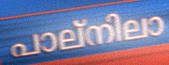
പാല്നിലാ